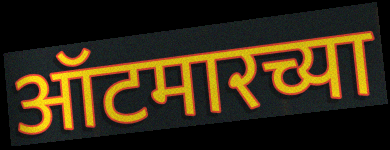
ऑटमारच्या